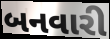
બનવારી